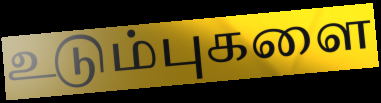
உடும்புகளை